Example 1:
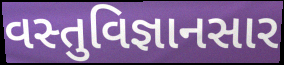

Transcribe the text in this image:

વસ્તુવિજ્ઞાનસાર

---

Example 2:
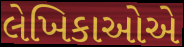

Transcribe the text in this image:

લેખિકાઓએ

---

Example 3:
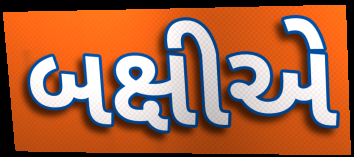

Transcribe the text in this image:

બક્ષીએ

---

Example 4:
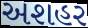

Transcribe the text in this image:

અશહર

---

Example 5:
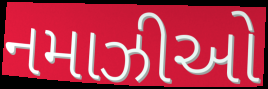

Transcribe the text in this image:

નમાઝીઓ